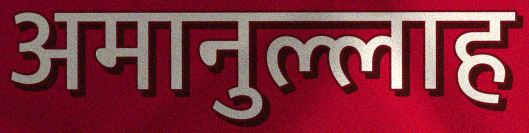
अमानुल्लाह